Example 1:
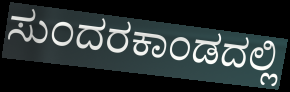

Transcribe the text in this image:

ಸುಂದರಕಾಂಡದಲ್ಲಿ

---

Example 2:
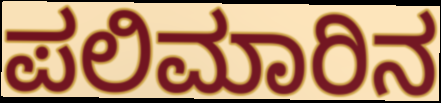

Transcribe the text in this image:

ಪಲಿಮಾರಿನ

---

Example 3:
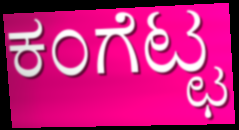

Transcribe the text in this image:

ಕಂಗೆಟ್ಟ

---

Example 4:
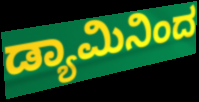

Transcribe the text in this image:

ಡ್ಯಾಮಿನಿಂದ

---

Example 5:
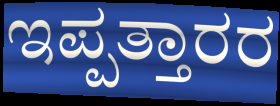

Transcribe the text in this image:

ಇಪ್ಪತ್ತಾರರ